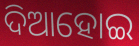
ଦିଆହୋଇ